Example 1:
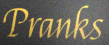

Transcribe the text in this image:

Pranks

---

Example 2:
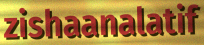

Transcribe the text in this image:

zishaanalatif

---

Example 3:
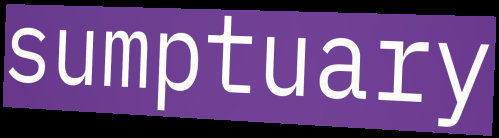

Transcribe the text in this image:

sumptuary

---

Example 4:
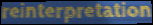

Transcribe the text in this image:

reinterpretation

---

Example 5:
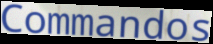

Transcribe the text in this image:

Commandos